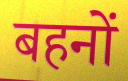
बहनों